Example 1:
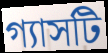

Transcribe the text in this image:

গ্যাসটি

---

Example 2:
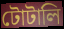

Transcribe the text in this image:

টোটালি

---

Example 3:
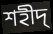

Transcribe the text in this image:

শহীদ্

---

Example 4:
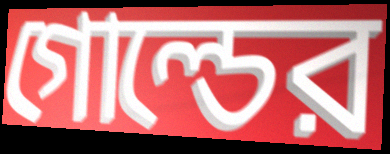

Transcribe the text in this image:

গোল্ডের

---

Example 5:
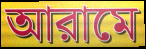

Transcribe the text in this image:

আরামে